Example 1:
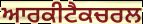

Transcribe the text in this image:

ਆਰਕੀਟੈਕਚਰਲ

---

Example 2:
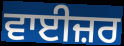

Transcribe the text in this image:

ਵਾਈਜ਼ਰ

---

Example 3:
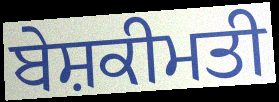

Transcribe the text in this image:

ਬੇਸ਼ਕੀਮਤੀ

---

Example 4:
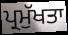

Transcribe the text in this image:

ਪ੍ਰਮੁੱਖਤਾ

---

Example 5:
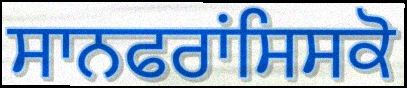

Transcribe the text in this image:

ਸਾਨਫਰਾਂਸਿਸਕੋ